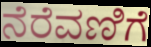
ನೆರೆವಣಿಗೆ